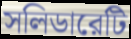
সলিডারেটি